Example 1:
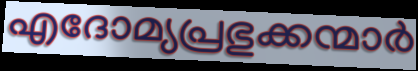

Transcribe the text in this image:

എദോമ്യപ്രഭുക്കന്മാർ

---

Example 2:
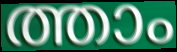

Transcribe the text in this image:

ത്താം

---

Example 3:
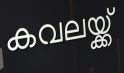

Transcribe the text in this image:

കവലയ്ക്ക്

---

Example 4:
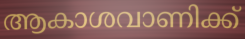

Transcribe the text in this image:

ആകാശവാണിക്ക്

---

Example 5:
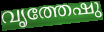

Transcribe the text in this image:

വൃത്തേഷു